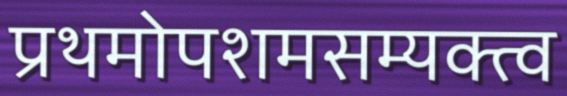
प्रथमोपशमसम्यक्त्व